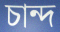
চান্দ